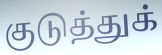
குடுத்துக்